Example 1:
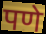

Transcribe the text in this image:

पणे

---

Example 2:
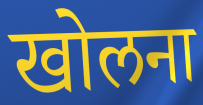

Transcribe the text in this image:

खोलना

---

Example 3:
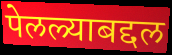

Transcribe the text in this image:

पेलल्याबद्दल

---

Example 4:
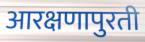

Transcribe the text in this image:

आरक्षणापुरती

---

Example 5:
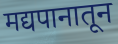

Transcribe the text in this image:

मद्यपानातून